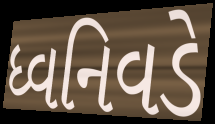
ધ્વનિવડે